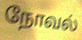
நோவல்